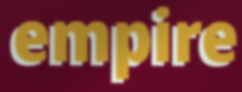
empire